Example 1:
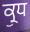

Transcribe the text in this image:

ਕ੍ਰੁਧ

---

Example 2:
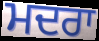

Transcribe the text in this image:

ਮਦਰਾ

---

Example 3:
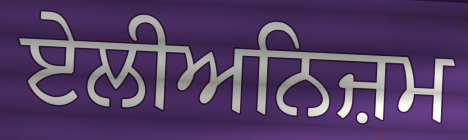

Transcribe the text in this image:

ਏਲੀਅਨਿਜ਼ਮ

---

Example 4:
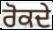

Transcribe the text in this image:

ਰੋਕਦੇ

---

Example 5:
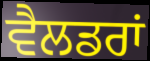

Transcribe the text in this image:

ਵੈਲਡਰਾਂ